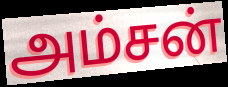
அம்சன்